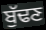
ਬੁੱਢਣ